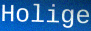
Holige